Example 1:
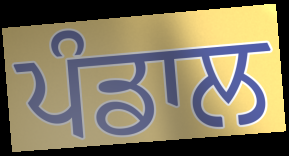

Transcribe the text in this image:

ਪੰਡਾਲ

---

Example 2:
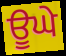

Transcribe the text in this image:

ਊਘੇ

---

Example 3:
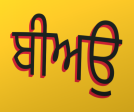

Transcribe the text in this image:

ਬੀਅਉ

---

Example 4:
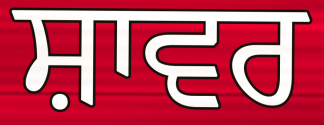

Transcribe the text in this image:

ਸ਼ਾਵਰ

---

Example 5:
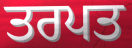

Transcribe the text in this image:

ਤਰਪਤ